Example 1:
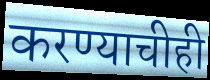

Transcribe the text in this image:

करण्याचीही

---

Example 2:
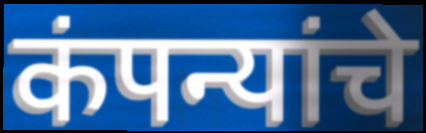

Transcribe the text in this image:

कंपन्यांचे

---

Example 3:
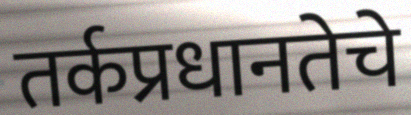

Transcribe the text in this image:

तर्कप्रधानतेचे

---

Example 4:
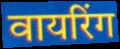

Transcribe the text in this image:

वायरिंग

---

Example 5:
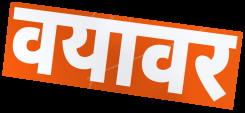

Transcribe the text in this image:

वयावर